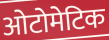
ओटोमेटिक